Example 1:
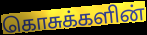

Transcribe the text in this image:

கொசுக்களின்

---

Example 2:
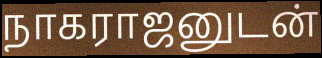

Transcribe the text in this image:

நாகராஜனுடன்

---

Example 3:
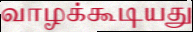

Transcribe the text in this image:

வாழக்கூடியது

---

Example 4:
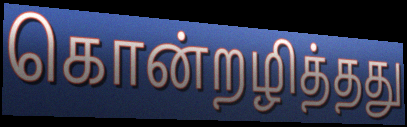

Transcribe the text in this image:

கொன்றழித்தது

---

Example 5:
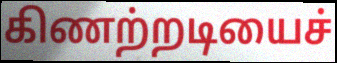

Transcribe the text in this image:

கிணற்றடியைச்